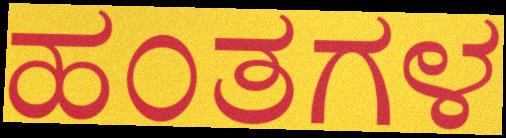
ಹಂತಗಳ